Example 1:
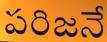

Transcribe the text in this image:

పరిజనే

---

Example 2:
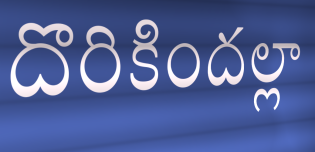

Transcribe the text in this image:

దొరికిందల్లా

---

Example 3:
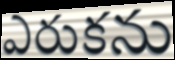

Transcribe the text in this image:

ఎరుకను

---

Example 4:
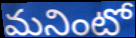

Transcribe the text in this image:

మనింటో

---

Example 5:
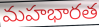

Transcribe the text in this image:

మహభారత